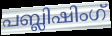
പബ്ലിഷിംഗ്